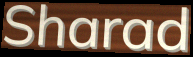
Sharad